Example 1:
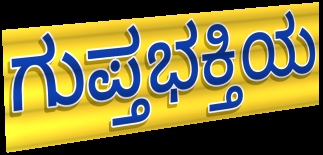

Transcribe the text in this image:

ಗುಪ್ತಭಕ್ತಿಯ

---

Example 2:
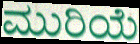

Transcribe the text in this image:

ಮುರಿಯೆ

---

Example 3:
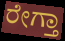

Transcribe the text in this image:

ರೇಗ್ತಾ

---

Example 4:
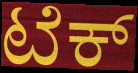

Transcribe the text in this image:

ಟೆಕ್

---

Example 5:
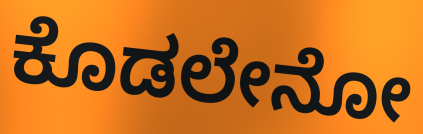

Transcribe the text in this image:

ಕೊಡಲೇನೋ